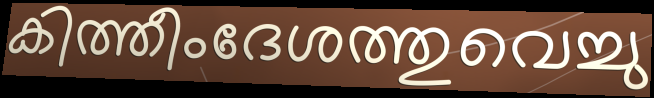
കിത്തീംദേശത്തുവെച്ചു